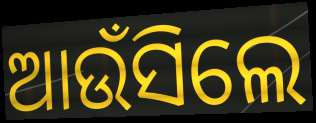
ଆଉଁସିଲେ